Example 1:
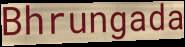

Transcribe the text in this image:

Bhrungada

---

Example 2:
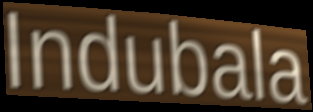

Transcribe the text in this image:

Indubala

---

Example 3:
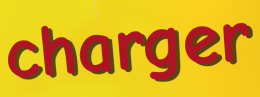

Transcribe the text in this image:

charger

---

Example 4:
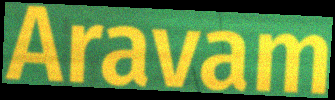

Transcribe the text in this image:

Aravam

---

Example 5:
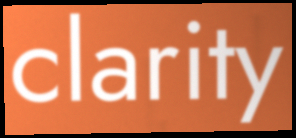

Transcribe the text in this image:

clarity